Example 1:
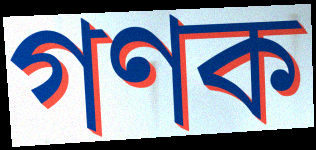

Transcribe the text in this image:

গণক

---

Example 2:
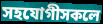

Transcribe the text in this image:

সহযোগীসকলে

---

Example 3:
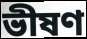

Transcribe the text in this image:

ভীষণ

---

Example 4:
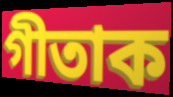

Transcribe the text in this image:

গীতাক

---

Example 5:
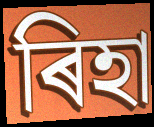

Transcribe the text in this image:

ৰিহা